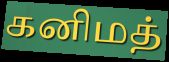
கனிமத்